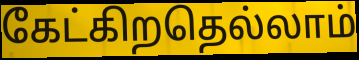
கேட்கிறதெல்லாம்